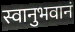
स्वानुभवानं